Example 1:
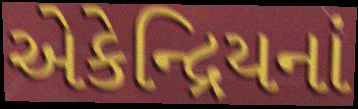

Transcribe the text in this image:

એકેન્દ્રિયનાં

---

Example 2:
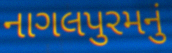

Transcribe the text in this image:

નાગલપુરમનું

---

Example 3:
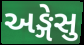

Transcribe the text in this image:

અઙ્ગેસુ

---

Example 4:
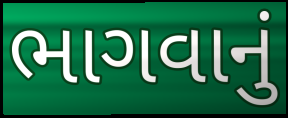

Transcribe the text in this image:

ભાગવાનું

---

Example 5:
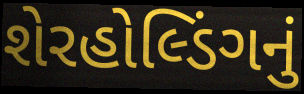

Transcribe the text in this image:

શેરહોલ્ડિંગનું